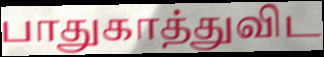
பாதுகாத்துவிட